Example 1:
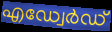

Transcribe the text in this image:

എഡ്വേർഡ്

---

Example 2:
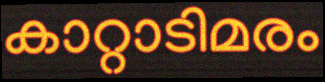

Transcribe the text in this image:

കാറ്റാടിമരം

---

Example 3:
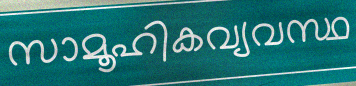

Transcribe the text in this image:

സാമൂഹികവ്യവസ്ഥ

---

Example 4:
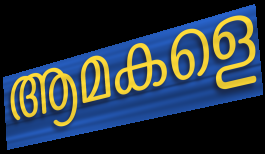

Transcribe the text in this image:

ആമകളെ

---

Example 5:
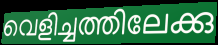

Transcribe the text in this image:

വെളിച്ചത്തിലേക്കു